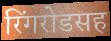
रिंगरोडसह